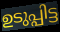
ഉടുപ്പിട്ട